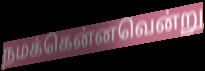
நமக்கென்னவென்று